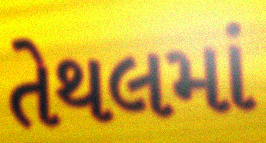
તેથલમાં